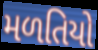
મળતિયો